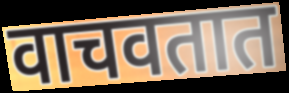
वाचवतात